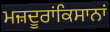
ਮਜ਼ਦੂਰਾਂਕਿਸਾਨਾਂ